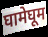
घामेघूम